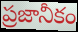
ప్రజానీకం